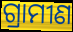
ଗ୍ରାମୀଣ